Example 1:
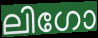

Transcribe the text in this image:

ലിഗോ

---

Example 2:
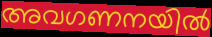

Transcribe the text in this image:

അവഗണനയിൽ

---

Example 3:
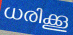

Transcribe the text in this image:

ധരിക്കൂ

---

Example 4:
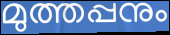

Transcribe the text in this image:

മുത്തപ്പനും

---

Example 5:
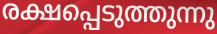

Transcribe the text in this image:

രക്ഷപ്പെടുത്തുന്നു